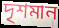
দৃশমান